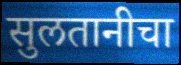
सुलतानीचा